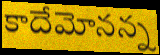
కాదేమోనన్న